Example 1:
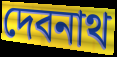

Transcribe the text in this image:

দেবনাথ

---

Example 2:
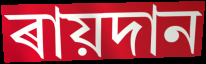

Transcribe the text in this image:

ৰায়দান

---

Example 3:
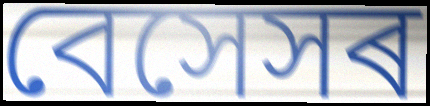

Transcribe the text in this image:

বেসেসৰ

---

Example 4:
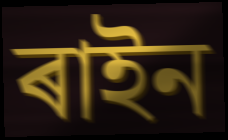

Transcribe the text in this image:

ৰাইন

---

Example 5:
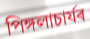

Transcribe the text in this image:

পিঙ্গলাচাৰ্যৰ